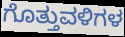
ಗೊತ್ತುವಳಿಗಳ